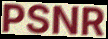
PSNR